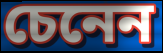
চেনেন